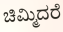
ಚಿಮ್ಮಿದರೆ